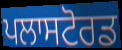
ਪਲਾਸਟੋਰਡ